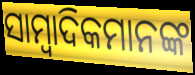
ସାମ୍ବାଦିକମାନଙ୍କ